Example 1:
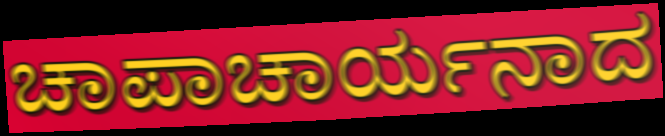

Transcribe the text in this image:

ಚಾಪಾಚಾರ್ಯನಾದ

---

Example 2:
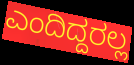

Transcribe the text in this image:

ಎಂದಿದ್ದರಲ್ಲ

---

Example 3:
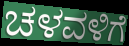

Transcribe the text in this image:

ಚಳವಳಿಗೆ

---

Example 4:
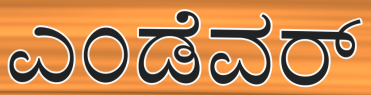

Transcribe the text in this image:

ಎಂಡೆವರ್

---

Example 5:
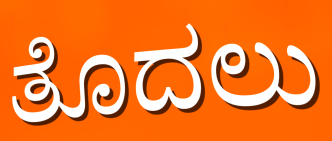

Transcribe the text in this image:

ತೊದಲು